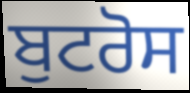
ਬੁਟਰੋਸ